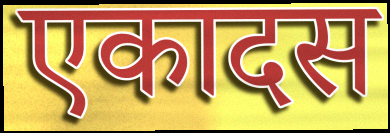
एकादस